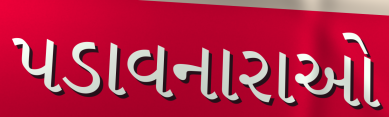
પડાવનારાઓ